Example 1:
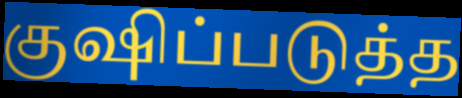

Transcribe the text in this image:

குஷிப்படுத்த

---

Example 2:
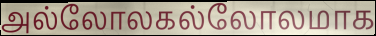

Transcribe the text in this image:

அல்லோலகல்லோலமாக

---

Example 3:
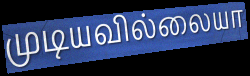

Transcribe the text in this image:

முடியவில்லையா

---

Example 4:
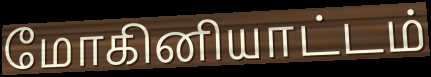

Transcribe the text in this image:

மோகினியாட்டம்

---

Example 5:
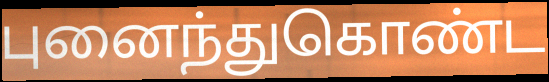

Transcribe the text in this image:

புனைந்துகொண்ட